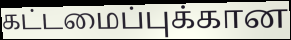
கட்டமைப்புக்கான